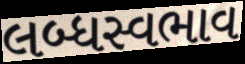
લબ્ધસ્વભાવ